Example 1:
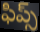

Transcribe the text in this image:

ఫిప్స్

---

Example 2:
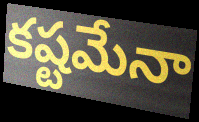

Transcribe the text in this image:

కష్టమేనా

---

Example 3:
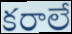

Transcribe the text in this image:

కరాలే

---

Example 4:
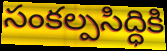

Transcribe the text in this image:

సంకల్పసిద్ధికి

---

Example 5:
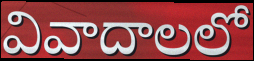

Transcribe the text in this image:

వివాదాలలో